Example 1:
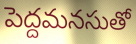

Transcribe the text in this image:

పెద్దమనసుతో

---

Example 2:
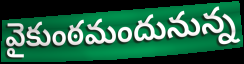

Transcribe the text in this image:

వైకుంఠమందునున్న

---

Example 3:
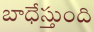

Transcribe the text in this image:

బాధేస్తుంది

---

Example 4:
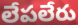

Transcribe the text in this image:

లేపలేరు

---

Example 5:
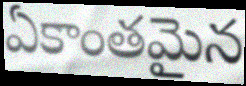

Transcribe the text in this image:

ఏకాంతమైన